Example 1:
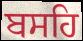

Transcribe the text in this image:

ਬਸਹਿ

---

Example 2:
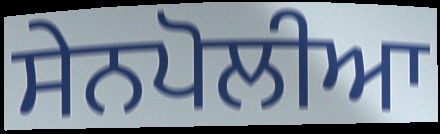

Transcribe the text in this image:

ਸੇਨਪੋਲੀਆ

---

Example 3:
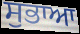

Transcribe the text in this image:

ਸੁਭਾਆ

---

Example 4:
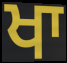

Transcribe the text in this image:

ਖਾ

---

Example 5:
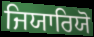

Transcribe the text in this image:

ਜਿਯਾਰਿਯੋ